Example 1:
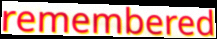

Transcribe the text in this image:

remembered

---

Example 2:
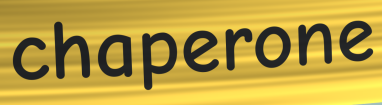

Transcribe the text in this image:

chaperone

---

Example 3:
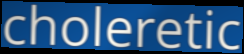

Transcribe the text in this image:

choleretic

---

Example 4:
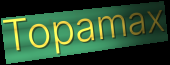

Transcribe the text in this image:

Topamax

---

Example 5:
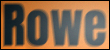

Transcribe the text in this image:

Rowe